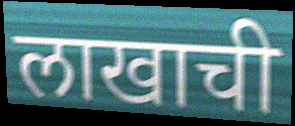
लाखाची